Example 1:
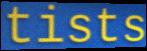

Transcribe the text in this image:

tists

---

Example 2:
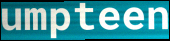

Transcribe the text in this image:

umpteen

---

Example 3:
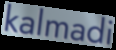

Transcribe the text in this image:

kalmadi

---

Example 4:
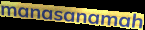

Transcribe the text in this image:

manasanamah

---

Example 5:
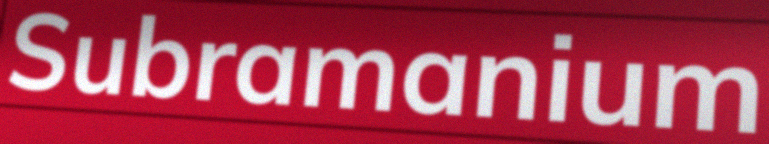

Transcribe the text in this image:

Subramanium